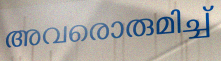
അവരൊരുമിച്ച്